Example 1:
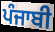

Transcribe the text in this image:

ਪੰਜਾਬੀ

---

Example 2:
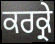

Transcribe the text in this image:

ਕਰਕ੍ਰੇ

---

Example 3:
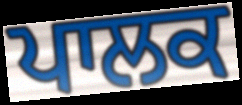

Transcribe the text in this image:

ਪਾਲਕ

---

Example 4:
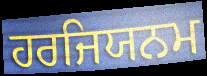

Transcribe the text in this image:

ਹਰਜਿਯਨਮ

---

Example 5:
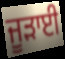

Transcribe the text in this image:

ਜੂੜਾਈ